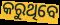
କରୁଥିବେ